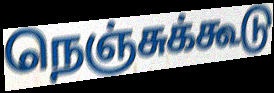
நெஞ்சுக்கூடு